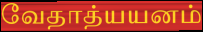
வேதாத்யயனம்